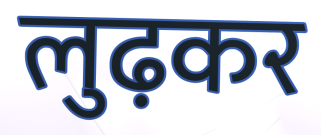
लुढ़कर